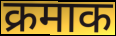
क्रमाक